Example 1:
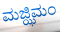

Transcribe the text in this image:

ಮಜ್ಝಿಮಂ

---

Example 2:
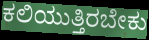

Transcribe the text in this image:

ಕಲಿಯುತ್ತಿರಬೇಕು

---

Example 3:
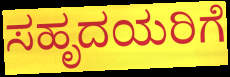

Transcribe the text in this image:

ಸಹೃದಯರಿಗೆ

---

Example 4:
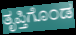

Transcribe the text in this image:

ತೃಪ್ತಿಗೊಂಡ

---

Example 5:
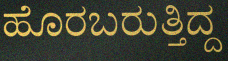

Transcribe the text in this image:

ಹೊರಬರುತ್ತಿದ್ದ